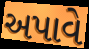
અપાવે